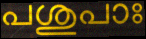
പശുപാഃ